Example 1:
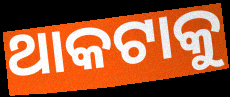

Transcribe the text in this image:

ଥାକଟାକୁ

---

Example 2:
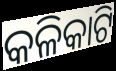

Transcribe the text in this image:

କଳିକାଟି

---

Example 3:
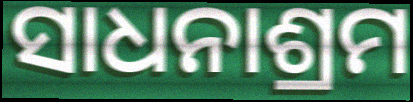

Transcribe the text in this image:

ସାଧନାଶ୍ରମ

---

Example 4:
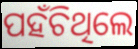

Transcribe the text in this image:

ପହଁଚିଥିଲେ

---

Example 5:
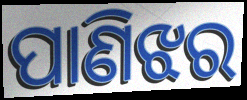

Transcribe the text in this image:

ପାଣିଝର